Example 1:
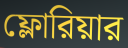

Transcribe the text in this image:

ফ্লোরিয়ার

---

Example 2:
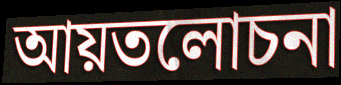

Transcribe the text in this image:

আয়তলোচনা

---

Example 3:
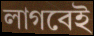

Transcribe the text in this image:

লাগবেই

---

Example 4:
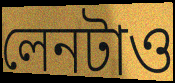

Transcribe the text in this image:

লেনটাও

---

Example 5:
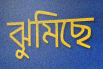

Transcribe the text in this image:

ঝুমিছে